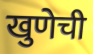
खुणेची